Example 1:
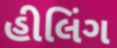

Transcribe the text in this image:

હીલિંગ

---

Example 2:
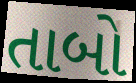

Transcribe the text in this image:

તાબો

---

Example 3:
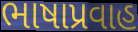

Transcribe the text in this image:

ભાષાપ્રવાહ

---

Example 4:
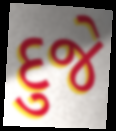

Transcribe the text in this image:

દુજે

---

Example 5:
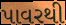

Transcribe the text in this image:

પાવરથી